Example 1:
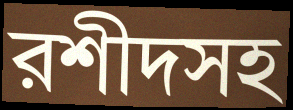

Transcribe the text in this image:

রশীদসহ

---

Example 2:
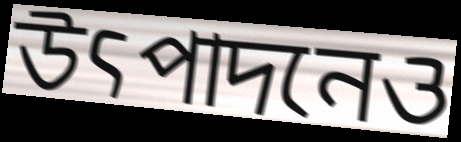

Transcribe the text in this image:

উৎপাদনেও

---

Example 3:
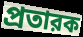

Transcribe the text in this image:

প্রতারক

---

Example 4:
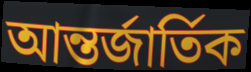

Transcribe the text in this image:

আন্তর্জার্তিক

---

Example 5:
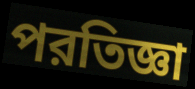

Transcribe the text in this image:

পরতিজ্ঞা